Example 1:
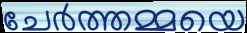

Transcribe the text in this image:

ചേർത്തമ്മയെ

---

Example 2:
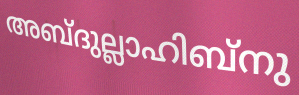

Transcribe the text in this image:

അബ്ദുല്ലാഹിബ്നു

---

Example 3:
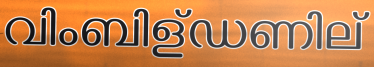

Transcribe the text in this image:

വിംബിള്ഡണില്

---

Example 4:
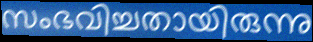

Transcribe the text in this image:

സംഭവിച്ചതായിരുന്നു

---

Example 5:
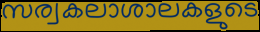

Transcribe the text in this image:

സര്വകലാശാലകളുടെ